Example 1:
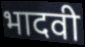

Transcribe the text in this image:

भादवी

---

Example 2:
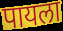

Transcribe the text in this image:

पायला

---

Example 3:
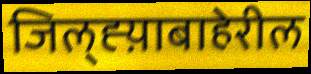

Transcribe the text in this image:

जिल्ह्य़ाबाहेरील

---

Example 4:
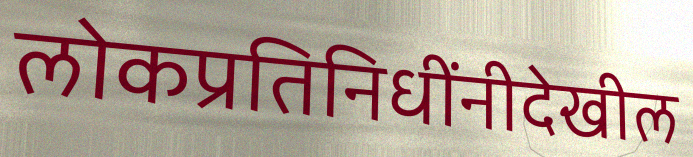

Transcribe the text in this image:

लोकप्रतिनिधींनीदेखील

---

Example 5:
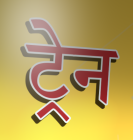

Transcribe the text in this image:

ट्रेन